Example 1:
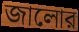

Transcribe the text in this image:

জালোর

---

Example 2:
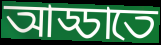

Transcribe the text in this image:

আড্ডাতে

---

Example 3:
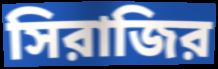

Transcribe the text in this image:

সিরাজির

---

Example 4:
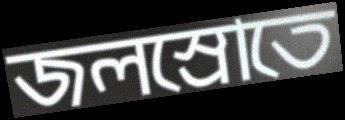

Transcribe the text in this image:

জলস্রোতে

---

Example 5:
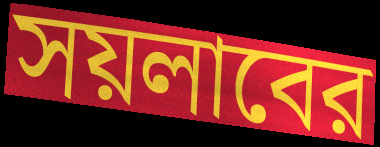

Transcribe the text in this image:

সয়লাবের